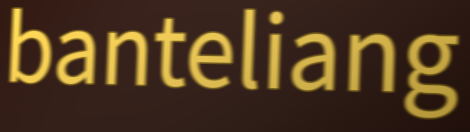
banteliang